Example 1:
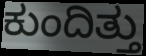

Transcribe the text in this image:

ಕುಂದಿತ್ತು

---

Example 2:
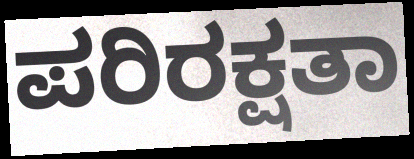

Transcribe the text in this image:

ಪರಿರಕ್ಷತಾ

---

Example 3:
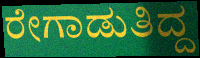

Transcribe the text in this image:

ರೇಗಾಡುತಿದ್ದ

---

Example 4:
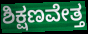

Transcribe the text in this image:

ಶಿಕ್ಷಣವೇತ್ತ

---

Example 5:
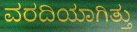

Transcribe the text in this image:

ವರದಿಯಾಗಿತ್ತು